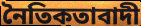
নৈতিকতাবাদী